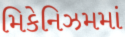
મિકેનિઝમમાં